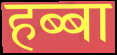
हब्‍बा